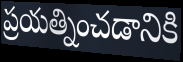
ప్రయత్నించడానికి